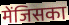
मेंजिसका